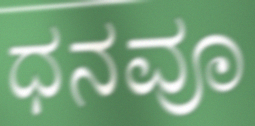
ಧನವೂ